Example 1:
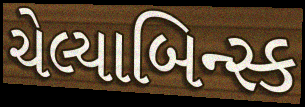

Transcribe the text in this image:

ચેલ્યાબિન્સ્ક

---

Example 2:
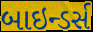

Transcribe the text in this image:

બાઇન્ડર્સ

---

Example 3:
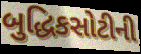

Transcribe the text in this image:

બુદ્ધિકસોટીની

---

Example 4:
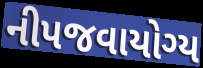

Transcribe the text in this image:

નીપજવાયોગ્ય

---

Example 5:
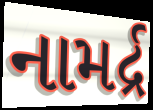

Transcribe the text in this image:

નામર્દ્ર